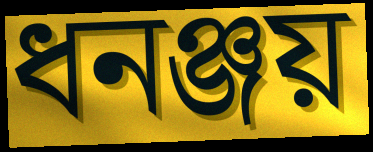
ধনঞ্জয়